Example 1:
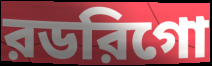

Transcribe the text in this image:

রডরিগো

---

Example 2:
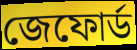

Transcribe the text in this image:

জেফোর্ড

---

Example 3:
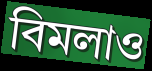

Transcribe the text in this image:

বিমলাও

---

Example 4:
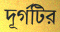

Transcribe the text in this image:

দূর্গটির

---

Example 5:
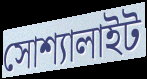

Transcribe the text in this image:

সোশ্যালাইট